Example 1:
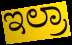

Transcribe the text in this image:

ಇಲ್ರಾ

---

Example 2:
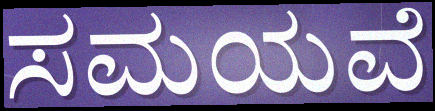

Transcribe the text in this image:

ಸಮಯವೆ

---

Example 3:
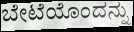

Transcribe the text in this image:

ಬೇಟೆಯೊಂದನ್ನು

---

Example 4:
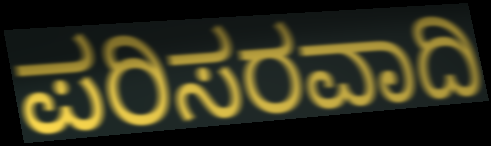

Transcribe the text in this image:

ಪರಿಸರವಾದಿ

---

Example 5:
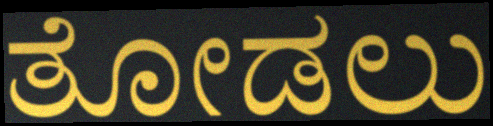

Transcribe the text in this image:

ತೋಡಲು